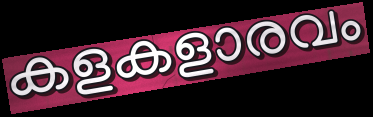
കളകളാരവം